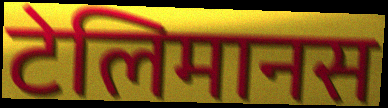
टेलिमानस